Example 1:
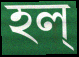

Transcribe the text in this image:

হল্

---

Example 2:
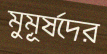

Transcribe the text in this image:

মুমূর্ষদের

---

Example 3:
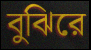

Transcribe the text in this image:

বুঝিরে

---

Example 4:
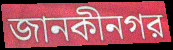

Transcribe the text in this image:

জানকীনগর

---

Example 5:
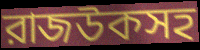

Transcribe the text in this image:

রাজউকসহ